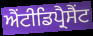
ਐਂਟੀਡਿਪ੍ਰੈਸੈਂਟ